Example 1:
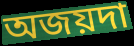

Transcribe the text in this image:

অজয়দা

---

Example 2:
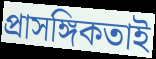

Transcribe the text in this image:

প্রাসঙ্গিকতাই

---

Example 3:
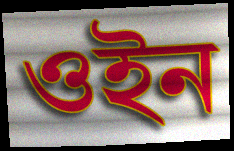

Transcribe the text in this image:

ওইন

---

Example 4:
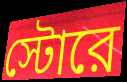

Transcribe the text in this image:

স্টোরে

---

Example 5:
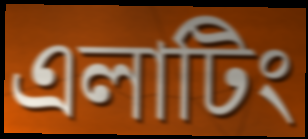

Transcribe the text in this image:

এলাটিং